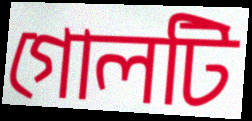
গোলটি